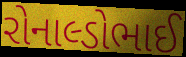
રોનાલ્ડોભાઈ